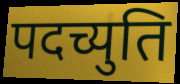
पदच्युति